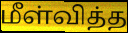
மீள்வித்த